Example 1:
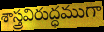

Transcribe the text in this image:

శాస్త్రవిరుద్ధముగా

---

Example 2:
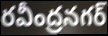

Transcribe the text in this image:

రవీంద్రనగర్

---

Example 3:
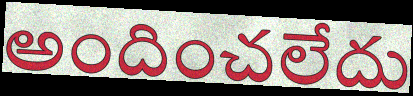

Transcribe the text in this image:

అందించలేదు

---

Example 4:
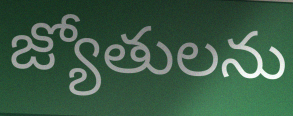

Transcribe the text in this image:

జ్యోతులను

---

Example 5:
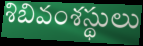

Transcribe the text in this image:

శిబివంశస్థులు